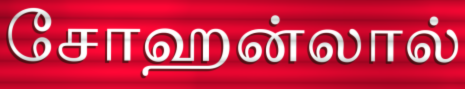
சோஹன்லால்